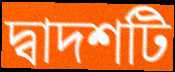
দ্বাদশটি